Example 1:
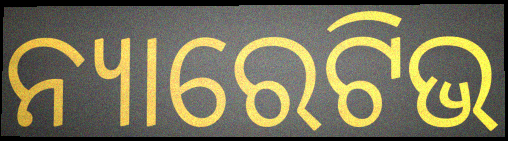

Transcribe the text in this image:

ନ୍ୟାରେଟିଭ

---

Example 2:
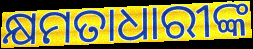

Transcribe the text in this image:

କ୍ଷମତାଧାରୀଙ୍କ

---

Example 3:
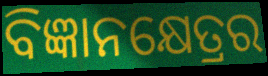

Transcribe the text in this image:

ବିଜ୍ଞାନକ୍ଷେତ୍ରର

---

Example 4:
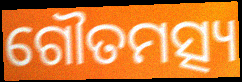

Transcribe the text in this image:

ଗୌତମତ୍ସ୍ୟ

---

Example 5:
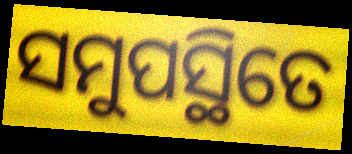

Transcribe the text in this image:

ସମୁପସ୍ଥିତେ